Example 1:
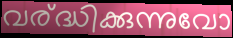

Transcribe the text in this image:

വര്ദ്ധിക്കുന്നുവോ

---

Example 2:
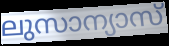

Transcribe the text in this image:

ലുസാന്യാസ്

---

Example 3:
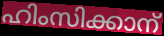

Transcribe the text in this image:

ഹിംസിക്കാന്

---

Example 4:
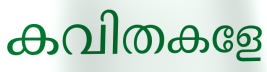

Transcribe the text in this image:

കവിതകളേ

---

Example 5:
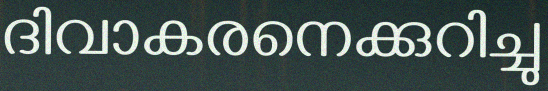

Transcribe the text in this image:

ദിവാകരനെക്കുറിച്ചു